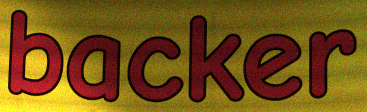
backer